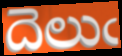
దెలుఁ